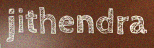
jithendra